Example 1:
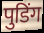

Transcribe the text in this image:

पुडिंग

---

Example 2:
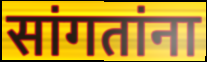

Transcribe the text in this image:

सांगतांना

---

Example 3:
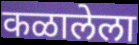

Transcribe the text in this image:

कळालेला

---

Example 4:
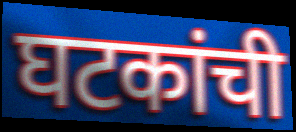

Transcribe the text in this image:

घटकांची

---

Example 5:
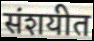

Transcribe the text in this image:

संशयीत